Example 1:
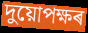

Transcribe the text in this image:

দুয়োপক্ষৰ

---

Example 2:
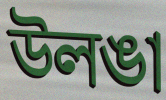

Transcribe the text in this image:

উলঙা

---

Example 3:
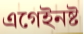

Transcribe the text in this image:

এগেইনষ্ট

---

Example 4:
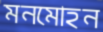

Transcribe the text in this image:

মনমোহন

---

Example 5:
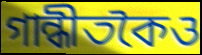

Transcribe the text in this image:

গান্ধীতকৈও